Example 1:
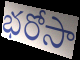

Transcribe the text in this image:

భరోసా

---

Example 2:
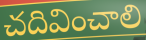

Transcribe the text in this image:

చదివించాలి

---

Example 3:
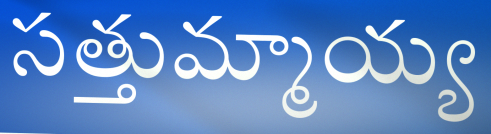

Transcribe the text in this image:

సత్తుమ్మాయ్య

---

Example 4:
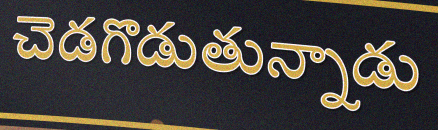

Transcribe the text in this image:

చెడగొడుతున్నాడు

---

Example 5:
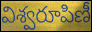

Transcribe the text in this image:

విశ్వరూపిణీ